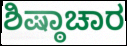
ಶಿಷ್ಠಾಚಾರ